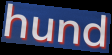
hund